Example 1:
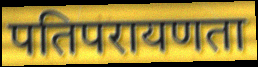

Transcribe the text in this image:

पतिपरायणता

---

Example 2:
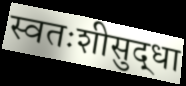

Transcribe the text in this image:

स्वतःशीसुद्धा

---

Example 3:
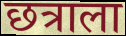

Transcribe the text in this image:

छत्राला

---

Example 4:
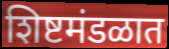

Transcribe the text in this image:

शिष्टमंडळात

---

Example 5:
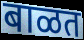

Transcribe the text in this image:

बाळत